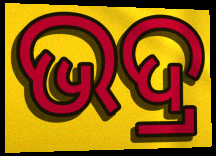
ଭଦ୍ର